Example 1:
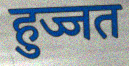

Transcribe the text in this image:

हुज्जत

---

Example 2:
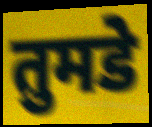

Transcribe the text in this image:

तुमडे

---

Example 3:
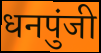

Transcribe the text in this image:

धनपुंजी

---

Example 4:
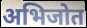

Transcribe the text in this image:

अभिजोत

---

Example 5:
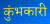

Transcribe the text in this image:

कुंभकारी